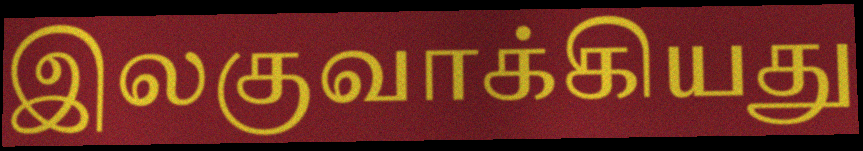
இலகுவாக்கியது